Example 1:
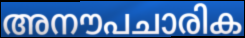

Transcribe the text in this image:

അനൗപചാരിക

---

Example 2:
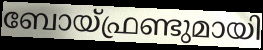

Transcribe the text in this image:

ബോയ്ഫ്രണ്ടുമായി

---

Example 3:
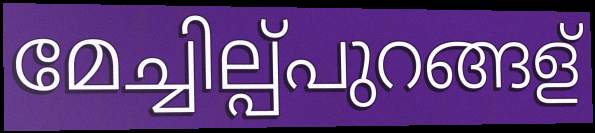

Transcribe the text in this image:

മേച്ചില്പ്പുറങ്ങള്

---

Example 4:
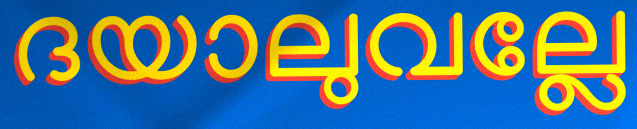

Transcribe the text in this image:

ദയാലുവല്ലേ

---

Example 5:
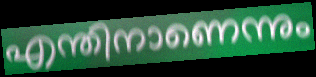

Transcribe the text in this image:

എന്തിനാണെന്നും